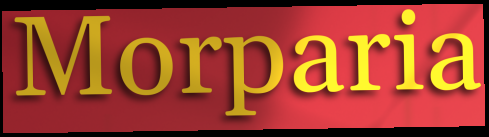
Morparia